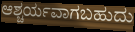
ಆಶ್ಚರ್ಯವಾಗಬಹುದು